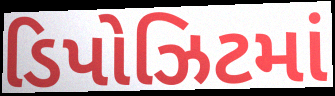
ડિપોઝિટમાં